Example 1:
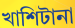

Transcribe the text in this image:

খাশিটানা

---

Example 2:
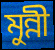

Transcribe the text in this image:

মুন্নী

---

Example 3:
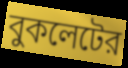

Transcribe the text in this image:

বুকলেটের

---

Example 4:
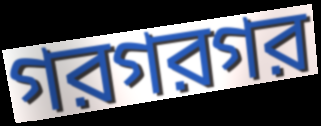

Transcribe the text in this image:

গরগরগর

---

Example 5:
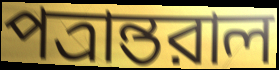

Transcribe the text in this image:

পত্রান্তরাল